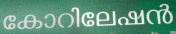
കോറിലേഷൻ